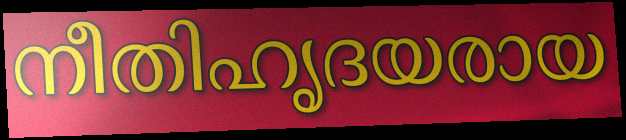
നീതിഹൃദയരായ